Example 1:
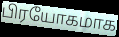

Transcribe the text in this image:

பிரயோகமாக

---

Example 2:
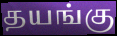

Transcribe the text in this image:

தயங்கு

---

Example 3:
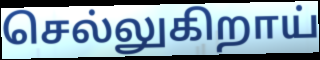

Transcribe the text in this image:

செல்லுகிறாய்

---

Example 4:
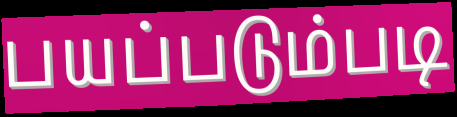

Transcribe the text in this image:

பயப்படும்படி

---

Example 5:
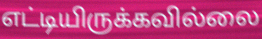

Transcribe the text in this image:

எட்டியிருக்கவில்லை